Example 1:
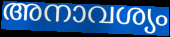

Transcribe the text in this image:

അനാവശ്യം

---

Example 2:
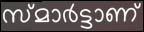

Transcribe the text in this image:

സ്മാർട്ടാണ്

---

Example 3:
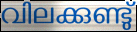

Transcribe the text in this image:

വിലക്കുണ്ടു്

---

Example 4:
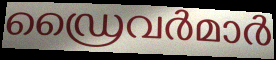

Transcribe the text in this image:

ഡ്രൈവർമാർ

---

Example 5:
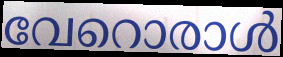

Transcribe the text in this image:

വേറൊരാൾ